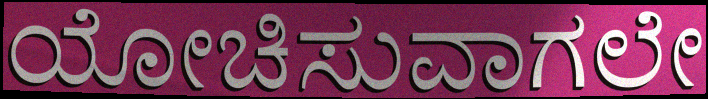
ಯೋಚಿಸುವಾಗಲೇ